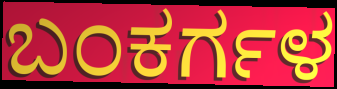
ಬಂಕರ್ಗಳ